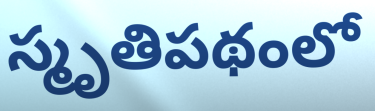
స్మృతిపథంలో